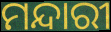
ମନ୍ଦାରୀ